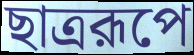
ছাত্ররূপে